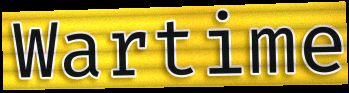
Wartime